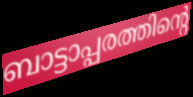
ബാട്ടാപ്പരത്തിന്റെ